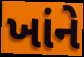
ખાંને